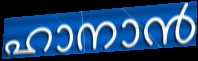
ഹാനാൻ